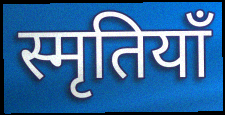
स्मृतियाँ